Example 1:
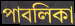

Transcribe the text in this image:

পাবলিকা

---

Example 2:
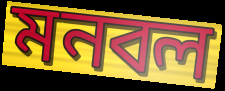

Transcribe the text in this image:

মনবল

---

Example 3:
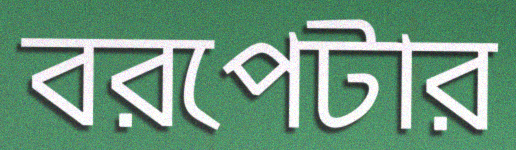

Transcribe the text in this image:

বরপেটার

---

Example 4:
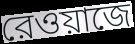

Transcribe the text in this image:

রেওয়াজে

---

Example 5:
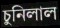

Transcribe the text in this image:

চুনিলাল